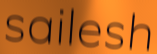
sailesh